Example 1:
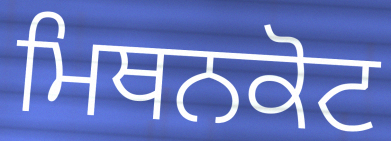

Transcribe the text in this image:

ਮਿਥਨਕੋਟ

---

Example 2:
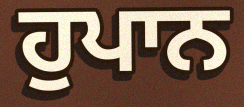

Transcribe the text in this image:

ਹੁਪਾਨ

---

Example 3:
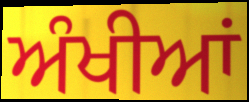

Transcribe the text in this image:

ਅੰਖੀਆਂ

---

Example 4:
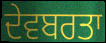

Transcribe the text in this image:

ਦੇਵਬਰਤਾ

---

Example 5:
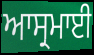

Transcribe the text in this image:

ਆਸ੍ਰਮਾਈ